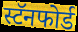
स्टॅनफोर्ड